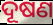
ଦୂଷଣ